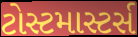
ટોસ્ટમાસ્ટર્સ